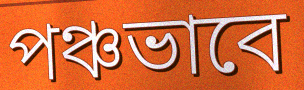
পঞ্চভাবে